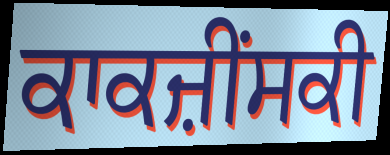
ਕਾਕਜ਼ੀੰਸਕੀ